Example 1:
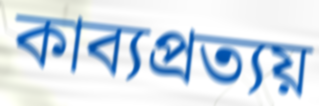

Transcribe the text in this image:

কাব্যপ্রত্যয়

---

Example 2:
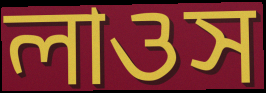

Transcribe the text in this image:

লাওস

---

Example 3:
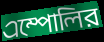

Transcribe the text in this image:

এম্পোলির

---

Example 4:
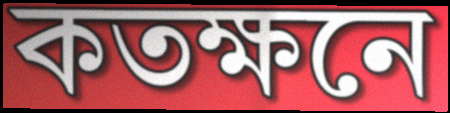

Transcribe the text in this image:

কতক্ষনে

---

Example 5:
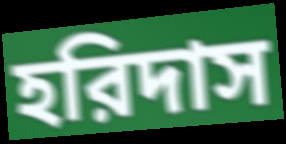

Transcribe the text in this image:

হরিদাস